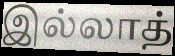
இல்லாத்